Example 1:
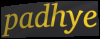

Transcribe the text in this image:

padhye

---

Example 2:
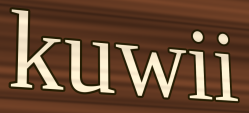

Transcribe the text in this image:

kuwii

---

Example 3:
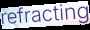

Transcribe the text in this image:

refracting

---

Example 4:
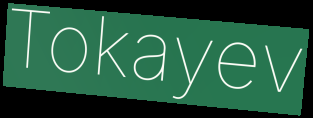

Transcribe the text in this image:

Tokayev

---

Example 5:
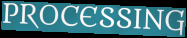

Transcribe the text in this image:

PROCESSING